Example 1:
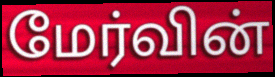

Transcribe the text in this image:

மேர்வின்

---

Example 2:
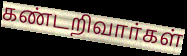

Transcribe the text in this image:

கண்டறிவார்கள்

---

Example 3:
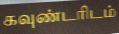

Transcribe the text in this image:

கவுண்டரிடம்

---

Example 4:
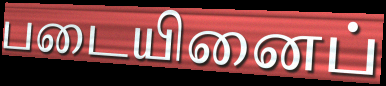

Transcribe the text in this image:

படையினைப்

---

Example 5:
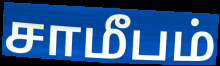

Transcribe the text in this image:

சாமீபம்